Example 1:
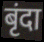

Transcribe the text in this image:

बृंदा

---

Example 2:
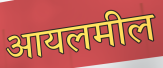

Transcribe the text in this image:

आयलमील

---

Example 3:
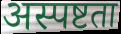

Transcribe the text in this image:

अस्पष्टता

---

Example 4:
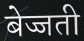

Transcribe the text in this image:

बेज्जती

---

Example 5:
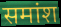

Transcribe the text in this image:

समांश